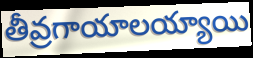
తీవ్రగాయాలయ్యాయి